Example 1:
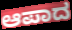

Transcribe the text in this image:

ಆಪಾದ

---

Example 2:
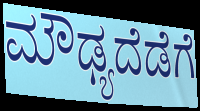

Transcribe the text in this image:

ಮೌಢ್ಯದೆಡೆಗೆ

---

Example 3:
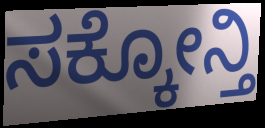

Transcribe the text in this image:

ಸಕ್ಕೋನ್ತಿ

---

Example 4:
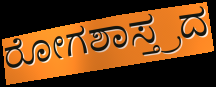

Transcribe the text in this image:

ರೋಗಶಾಸ್ತ್ರದ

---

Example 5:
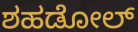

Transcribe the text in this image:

ಶಹಡೋಲ್